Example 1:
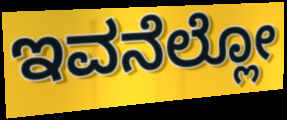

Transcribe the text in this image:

ಇವನೆಲ್ಲೋ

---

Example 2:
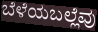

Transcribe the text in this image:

ಬೆಳೆಯಬಲ್ಲೆವು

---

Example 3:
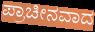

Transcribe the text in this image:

ಪ್ರಾಚೀನವಾದ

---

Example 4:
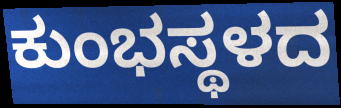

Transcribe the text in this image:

ಕುಂಭಸ್ಥಳದ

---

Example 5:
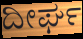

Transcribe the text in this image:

ದೀರ್ಘ